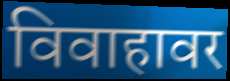
विवाहावर